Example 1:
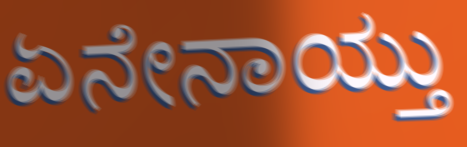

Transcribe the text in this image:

ಏನೇನಾಯ್ತು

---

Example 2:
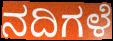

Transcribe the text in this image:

ನದಿಗಳೆ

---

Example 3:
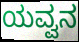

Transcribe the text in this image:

ಯವ್ವನ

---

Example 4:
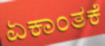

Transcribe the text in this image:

ಏಕಾಂತಕೆ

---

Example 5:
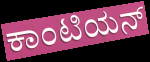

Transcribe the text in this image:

ಕಾಂಟಿಯನ್